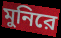
মুনিরে